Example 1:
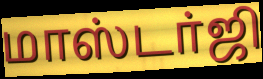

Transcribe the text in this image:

மாஸ்டர்ஜி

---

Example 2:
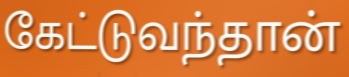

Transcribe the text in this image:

கேட்டுவந்தான்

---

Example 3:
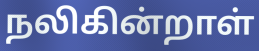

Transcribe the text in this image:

நலிகின்றாள்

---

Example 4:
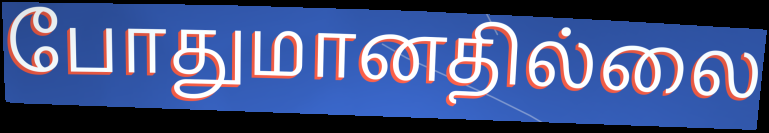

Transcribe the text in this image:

போதுமானதில்லை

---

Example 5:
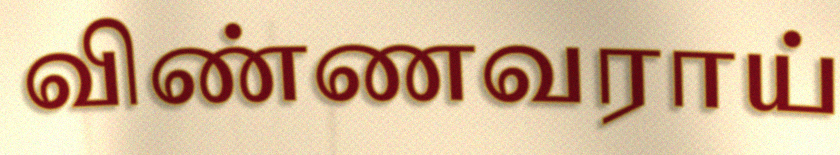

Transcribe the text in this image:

விண்ணவராய்